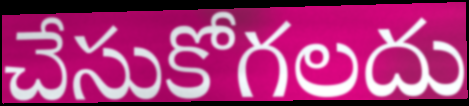
చేసుకోగలదు